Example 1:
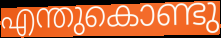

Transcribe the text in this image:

എന്തുകൊണ്ടു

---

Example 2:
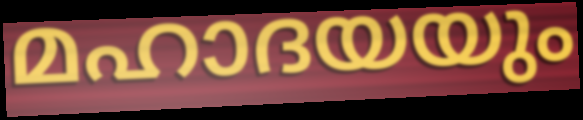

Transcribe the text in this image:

മഹാദയയും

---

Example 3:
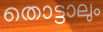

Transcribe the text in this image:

തൊട്ടാലും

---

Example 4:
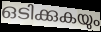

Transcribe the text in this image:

ഒടിക്കുകയും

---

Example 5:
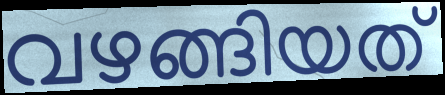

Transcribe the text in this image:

വഴങ്ങിയത്